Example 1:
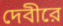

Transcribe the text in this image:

দেবীরে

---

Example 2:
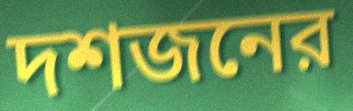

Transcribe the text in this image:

দশজনের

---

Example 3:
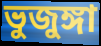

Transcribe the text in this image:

ভুজুঙ্গা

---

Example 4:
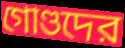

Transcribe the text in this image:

গোণ্ডদের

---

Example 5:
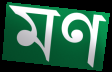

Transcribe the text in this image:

মণ